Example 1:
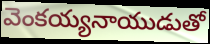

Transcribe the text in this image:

వెంకయ్యనాయుడుతో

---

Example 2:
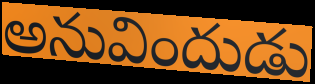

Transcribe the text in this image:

అనువిందుడు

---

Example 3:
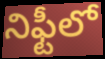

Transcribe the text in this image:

నిఫ్టీలో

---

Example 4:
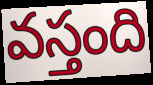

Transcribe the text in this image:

వస్తంది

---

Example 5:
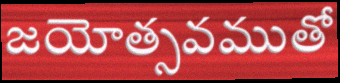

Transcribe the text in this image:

జయోత్సవముతో